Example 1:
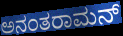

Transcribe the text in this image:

ಅನಂತರಾಮನ್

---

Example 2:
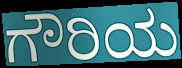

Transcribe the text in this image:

ಗೌರಿಯ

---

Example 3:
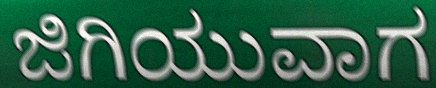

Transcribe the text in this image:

ಜಿಗಿಯುವಾಗ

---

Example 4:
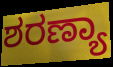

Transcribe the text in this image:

ಶರಣ್ಯಾ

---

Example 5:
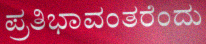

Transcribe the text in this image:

ಪ್ರತಿಭಾವಂತರೆಂದು